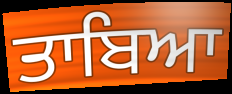
ਤਾਬਿਆ